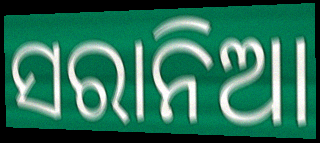
ସରାନିଆ